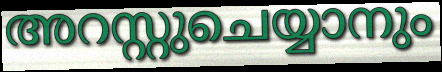
അറസ്റ്റുചെയ്യാനും